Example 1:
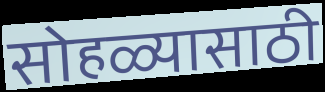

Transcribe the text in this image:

सोहळ्यासाठी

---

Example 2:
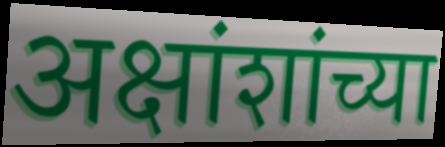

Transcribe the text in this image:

अक्षांशांच्या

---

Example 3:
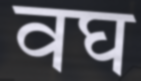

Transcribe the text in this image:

वघ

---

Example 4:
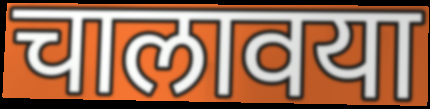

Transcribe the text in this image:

चालावया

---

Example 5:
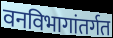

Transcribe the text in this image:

वनविभागांतर्गत